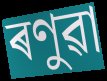
ৰণুৱা